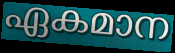
ഏകമാന